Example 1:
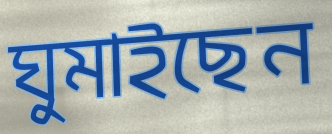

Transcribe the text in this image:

ঘুমাইছেন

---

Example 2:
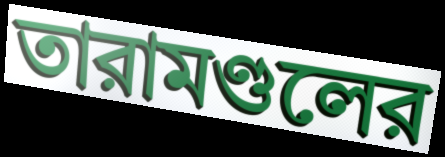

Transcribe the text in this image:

তারামণ্ডলের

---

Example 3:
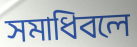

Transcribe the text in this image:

সমাধিবলে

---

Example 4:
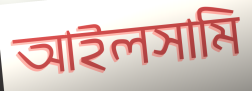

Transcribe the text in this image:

আইলসামি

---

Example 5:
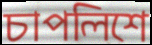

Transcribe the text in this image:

চাপলিশে